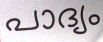
പാദ്യം